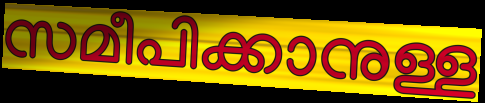
സമീപിക്കാനുള്ള